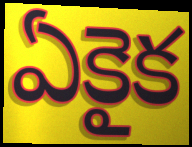
ఏకైక